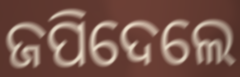
ଜପିଦେଲେ